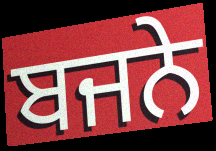
ਬਜਨੇ